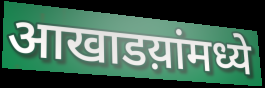
आखाडय़ांमध्ये